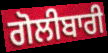
ਗੋਲੀਬਾਰੀ